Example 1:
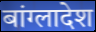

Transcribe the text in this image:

बांग्लादेश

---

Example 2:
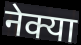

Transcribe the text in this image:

नेक्या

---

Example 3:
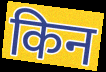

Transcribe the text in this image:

किन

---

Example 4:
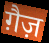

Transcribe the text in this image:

ग़ैज़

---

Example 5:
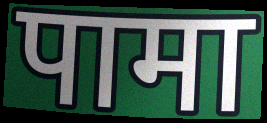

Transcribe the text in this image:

पामा